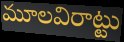
మూలవిరాట్టు